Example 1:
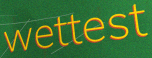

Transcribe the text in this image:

wettest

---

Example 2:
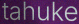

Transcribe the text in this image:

tahuke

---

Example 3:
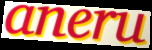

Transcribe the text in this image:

aneru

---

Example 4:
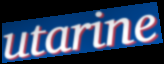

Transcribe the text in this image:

utarine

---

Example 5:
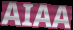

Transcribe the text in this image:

AIAA